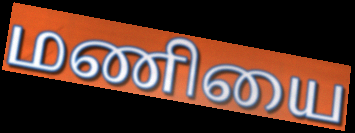
மணியை